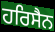
ਹਰਿਸੈਨ